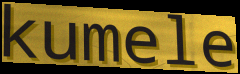
kumele